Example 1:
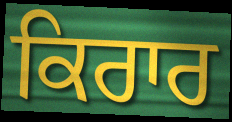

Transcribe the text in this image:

ਕਿਰਾਰ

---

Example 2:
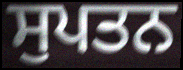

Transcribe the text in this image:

ਸੁਪਤਨ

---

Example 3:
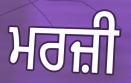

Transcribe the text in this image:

ਮਰਜ਼ੀ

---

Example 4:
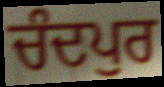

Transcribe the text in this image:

ਚੰਦਪੁਰ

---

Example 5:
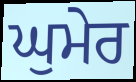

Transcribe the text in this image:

ਘੁਮੇਰ